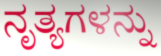
ನೃತ್ಯಗಳನ್ನು